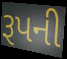
રૂપની